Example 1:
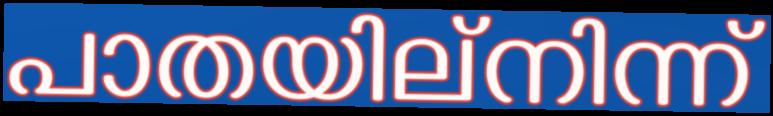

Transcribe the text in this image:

പാതയില്നിന്ന്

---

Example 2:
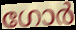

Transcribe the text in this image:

ഗോർ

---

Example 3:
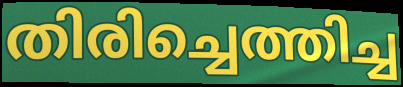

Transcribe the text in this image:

തിരിച്ചെത്തിച്ച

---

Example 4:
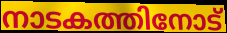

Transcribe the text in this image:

നാടകത്തിനോട്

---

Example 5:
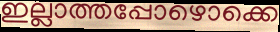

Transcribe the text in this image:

ഇല്ലാത്തപ്പോഴൊക്കെ